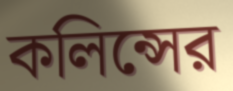
কলিন্সের